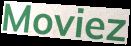
Moviez